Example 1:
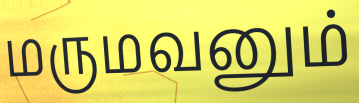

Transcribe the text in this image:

மருமவனும்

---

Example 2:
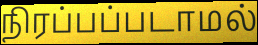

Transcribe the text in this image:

நிரப்பப்படாமல்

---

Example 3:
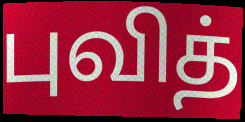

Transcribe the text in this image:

புவித்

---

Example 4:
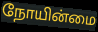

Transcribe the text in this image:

நோயின்மை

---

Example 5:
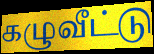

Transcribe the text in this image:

கழுவீட்டு